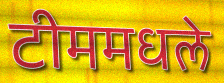
टीममधले